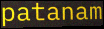
patanam